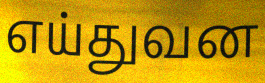
எய்துவன